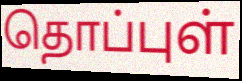
தொப்புள்